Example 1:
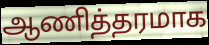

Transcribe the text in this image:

ஆணித்தரமாக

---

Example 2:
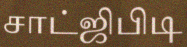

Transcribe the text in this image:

சாட்ஜிபிடி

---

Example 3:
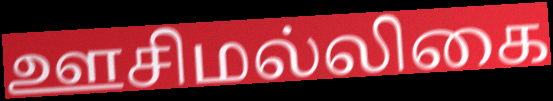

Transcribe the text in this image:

ஊசிமல்லிகை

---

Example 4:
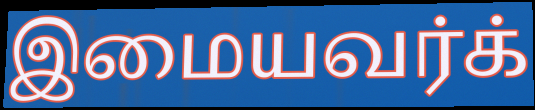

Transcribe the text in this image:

இமையவர்க்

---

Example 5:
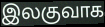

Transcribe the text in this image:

இலகுவாக